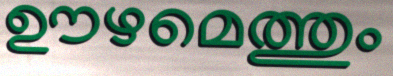
ഊഴമെത്തും